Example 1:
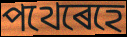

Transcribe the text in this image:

পথেৰেহে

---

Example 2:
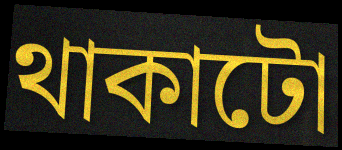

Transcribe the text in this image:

থাকাটো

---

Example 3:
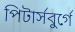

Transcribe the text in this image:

পিটাৰ্সবুৰ্গে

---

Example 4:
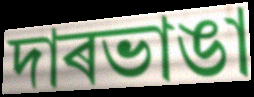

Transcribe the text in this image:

দাৰভাঙা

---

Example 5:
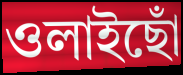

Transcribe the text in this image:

ওলাইছোঁ